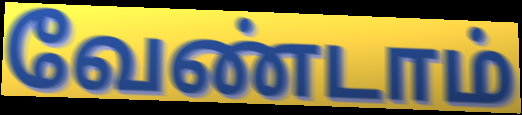
வேண்டாம்